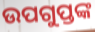
ଉପଗୁପ୍ତଙ୍କ